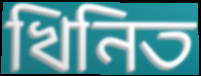
খিনিত